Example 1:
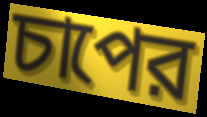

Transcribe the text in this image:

চাপের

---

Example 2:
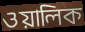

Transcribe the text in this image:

ওয়ালিক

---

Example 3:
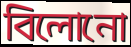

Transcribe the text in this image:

বিলোনো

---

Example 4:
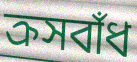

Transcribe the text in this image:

ক্রসবাঁধ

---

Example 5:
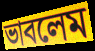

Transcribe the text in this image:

ভাবলেম